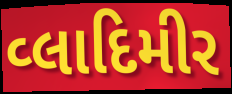
વ્લાદિમીર